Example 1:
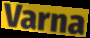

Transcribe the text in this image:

Varna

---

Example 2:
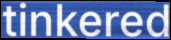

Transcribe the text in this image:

tinkered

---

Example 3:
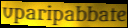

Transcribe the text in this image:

uparipabbate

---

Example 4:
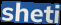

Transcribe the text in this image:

sheti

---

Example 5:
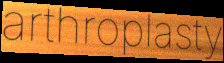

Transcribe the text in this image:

arthroplasty